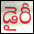
డైరీ